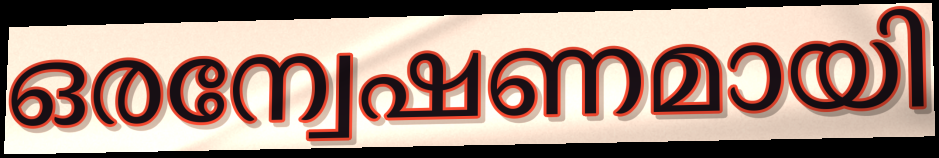
ഒരന്വേഷണമായി